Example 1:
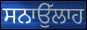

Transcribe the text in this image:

ਸਨਾਉੱਲਾਹ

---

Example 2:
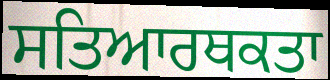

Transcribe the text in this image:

ਸਤਿਆਰਥਕਤਾ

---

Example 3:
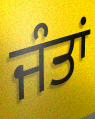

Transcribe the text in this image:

ਜੰਤਾਂ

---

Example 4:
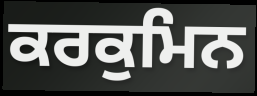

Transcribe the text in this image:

ਕਰਕੁਮਿਨ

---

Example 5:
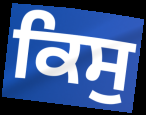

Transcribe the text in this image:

ਕਿਸੁ